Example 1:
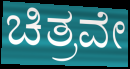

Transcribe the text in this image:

ಚಿತ್ರವೇ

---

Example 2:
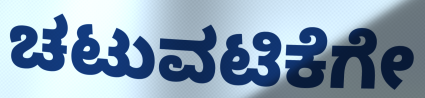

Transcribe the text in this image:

ಚಟುವಟಿಕೆಗೇ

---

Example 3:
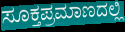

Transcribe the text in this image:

ಸೂಕ್ತಪ್ರಮಾಣದಲ್ಲಿ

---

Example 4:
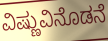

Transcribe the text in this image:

ವಿಷ್ಣುವಿನೊಡನೆ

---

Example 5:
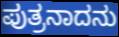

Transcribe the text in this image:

ಪುತ್ರನಾದನು